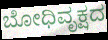
ಬೋಧಿವೃಕ್ಷದ